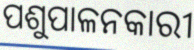
ପଶୁପାଳନକାରୀ